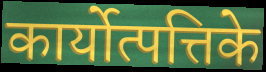
कार्योत्पत्तिके